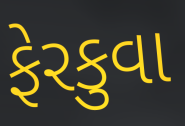
ફેરકુવા